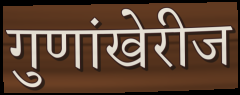
गुणांखेरीज